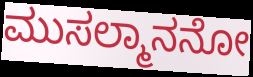
ಮುಸಲ್ಮಾನನೋ